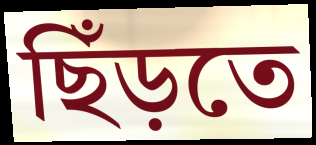
ছিঁড়তে